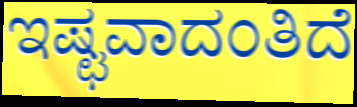
ಇಷ್ಟವಾದಂತಿದೆ